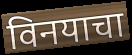
विनयाचा